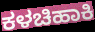
ಕಳಚಿಹಾಕಿ